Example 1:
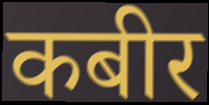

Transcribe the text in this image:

कबीर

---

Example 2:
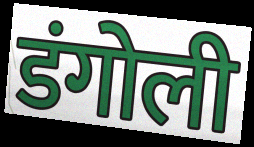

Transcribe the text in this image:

डंगोली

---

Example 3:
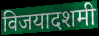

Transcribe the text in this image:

विजयादशमी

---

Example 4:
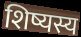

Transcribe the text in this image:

शिष्यस्य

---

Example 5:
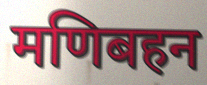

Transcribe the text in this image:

मणिबहन